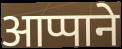
आप्पाने